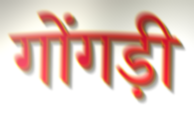
गोंगड़ी